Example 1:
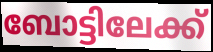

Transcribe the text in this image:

ബോട്ടിലേക്ക്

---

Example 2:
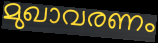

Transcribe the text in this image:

മുഖാവരണം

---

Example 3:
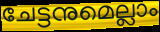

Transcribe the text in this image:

ചേട്ടനുമെല്ലാം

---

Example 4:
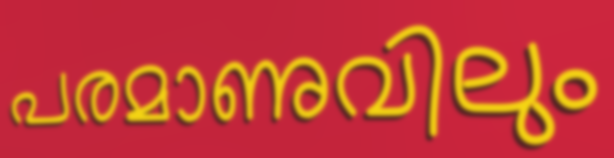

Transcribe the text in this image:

പരമാണുവിലും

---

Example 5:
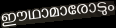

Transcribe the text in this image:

ഈഥാമാരോടും